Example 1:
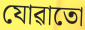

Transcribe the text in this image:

যোৱাতো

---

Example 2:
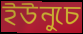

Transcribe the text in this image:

ইউনুচে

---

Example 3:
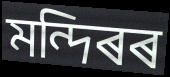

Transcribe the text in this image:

মন্দিৰৰ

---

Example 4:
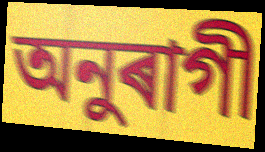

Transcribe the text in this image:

অনুৰাগী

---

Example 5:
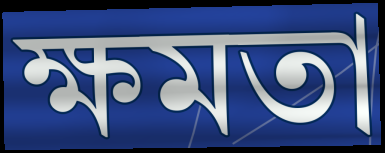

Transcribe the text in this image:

ক্ষমতা